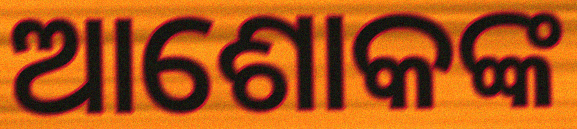
ଆଶୋକଙ୍କ